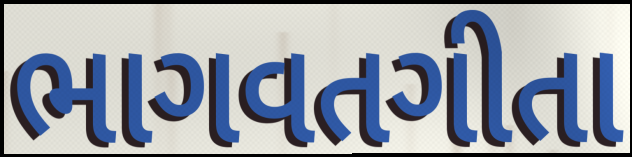
ભાગવતગીતા